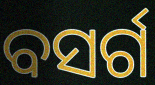
ବସର୍ଗ